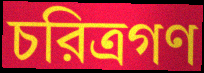
চরিত্রগণ